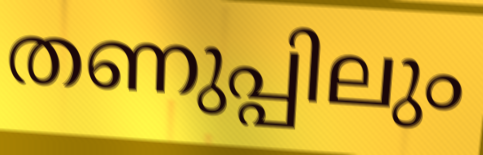
തണുപ്പിലും